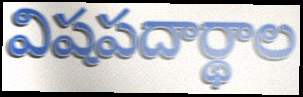
విషపదార్థాల